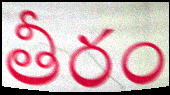
తీరం